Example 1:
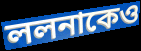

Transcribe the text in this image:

ললনাকেও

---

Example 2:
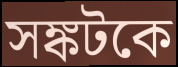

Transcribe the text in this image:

সঙ্কটকে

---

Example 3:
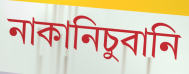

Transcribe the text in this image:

নাকানিচুবানি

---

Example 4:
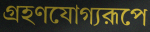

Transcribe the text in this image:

গ্রহণযোগ্যরূপে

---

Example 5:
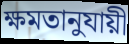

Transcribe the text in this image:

ক্ষমতানুযায়ী